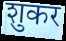
शुकर